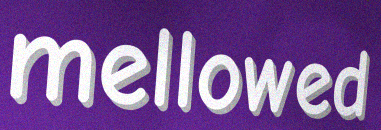
mellowed